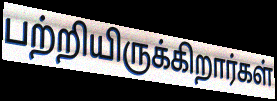
பற்றியிருக்கிறார்கள்